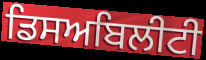
ਡਿਸਅਬਿਲੀਟੀ